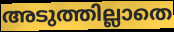
അടുത്തില്ലാതെ